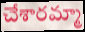
చేశారమ్మా